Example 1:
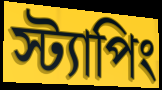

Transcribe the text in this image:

স্ট্যাপিং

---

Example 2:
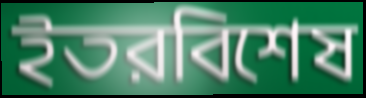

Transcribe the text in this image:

ইতরবিশেষ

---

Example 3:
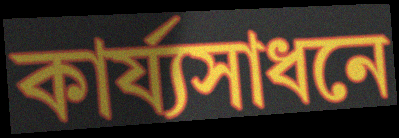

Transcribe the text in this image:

কার্য্যসাধনে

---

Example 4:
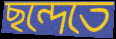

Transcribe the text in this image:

ছন্দেতে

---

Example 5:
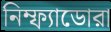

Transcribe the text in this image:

নিম্ফ্যাডোরা